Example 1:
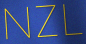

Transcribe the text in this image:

NZL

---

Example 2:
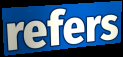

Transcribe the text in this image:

refers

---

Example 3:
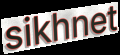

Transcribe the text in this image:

sikhnet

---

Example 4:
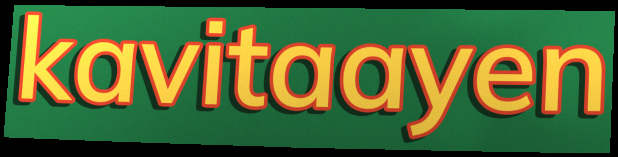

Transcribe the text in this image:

kavitaayen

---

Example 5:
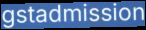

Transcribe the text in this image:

gstadmission